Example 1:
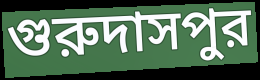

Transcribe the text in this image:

গুরুদাসপুর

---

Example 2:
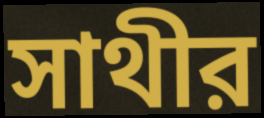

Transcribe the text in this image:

সাথীর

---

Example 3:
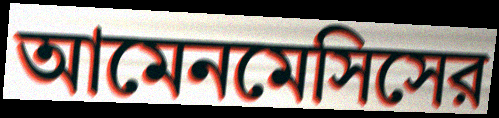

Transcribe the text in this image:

আমেনমেসিসের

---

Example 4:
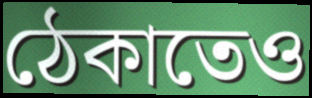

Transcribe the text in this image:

ঠেকাতেও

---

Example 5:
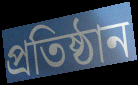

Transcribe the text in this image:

প্রতিষ্ঠান